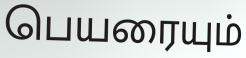
பெயரையும்